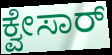
ಕ್ವೇಸಾರ್